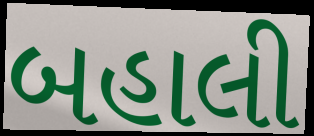
બહાલી